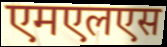
एमएलएस